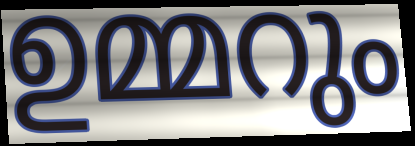
ഉമ്മറും